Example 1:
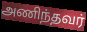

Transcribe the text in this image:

அணிந்தவர்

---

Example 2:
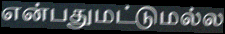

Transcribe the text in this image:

என்பதுமட்டுமல்ல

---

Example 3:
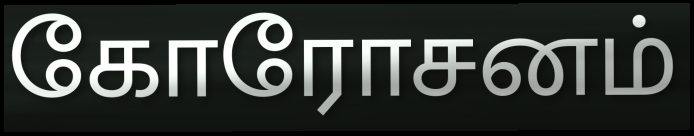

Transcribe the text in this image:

கோரோசனம்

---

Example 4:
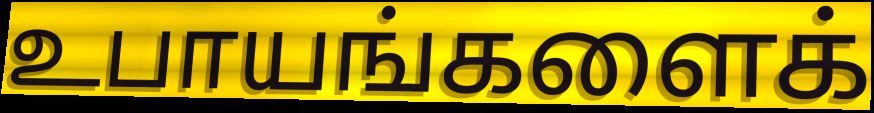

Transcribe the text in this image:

உபாயங்களைக்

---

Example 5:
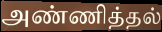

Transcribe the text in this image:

அண்ணித்தல்